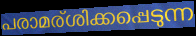
പരാമര്ശിക്കപ്പെടുന്ന